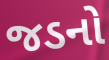
જડનો